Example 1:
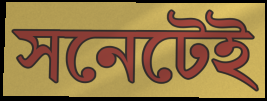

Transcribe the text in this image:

সনেটেই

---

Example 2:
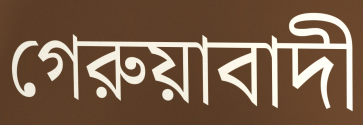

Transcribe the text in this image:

গেরুয়াবাদী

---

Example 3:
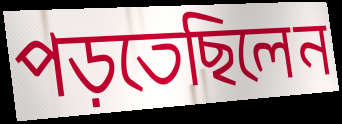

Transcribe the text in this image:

পড়তেছিলেন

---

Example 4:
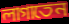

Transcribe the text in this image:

লাগাতেন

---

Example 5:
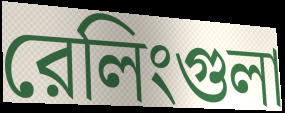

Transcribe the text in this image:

রেলিংগুলা